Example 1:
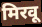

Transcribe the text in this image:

मिरवू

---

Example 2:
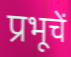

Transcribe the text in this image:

प्रभूचें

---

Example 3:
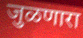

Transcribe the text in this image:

जुळणारा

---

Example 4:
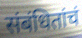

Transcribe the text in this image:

संबंधितांचं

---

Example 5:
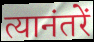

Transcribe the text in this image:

त्यानंतरें